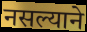
नसल्‍याने